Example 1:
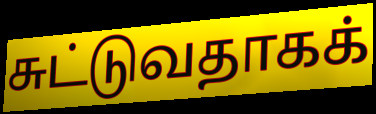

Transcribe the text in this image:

சுட்டுவதாகக்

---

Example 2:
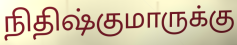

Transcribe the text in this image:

நிதிஷ்குமாருக்கு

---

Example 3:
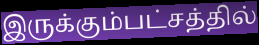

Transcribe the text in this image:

இருக்கும்பட்சத்தில்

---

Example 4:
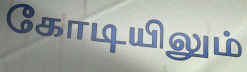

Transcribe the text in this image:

கோடியிலும்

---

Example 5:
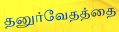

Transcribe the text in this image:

தனுர்வேதத்தை